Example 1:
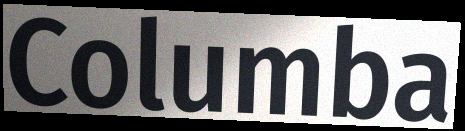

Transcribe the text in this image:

Columba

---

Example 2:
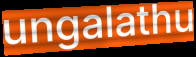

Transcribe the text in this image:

ungalathu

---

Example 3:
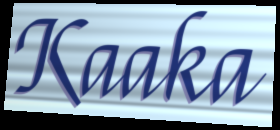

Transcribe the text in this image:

Kaaka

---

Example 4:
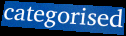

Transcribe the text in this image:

categorised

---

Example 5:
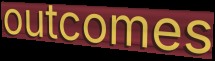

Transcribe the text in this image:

outcomes